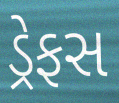
ડ્રેફસ